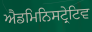
ਐਡਮਿਨਿਸਟ੍ਰੇਟਿਵ